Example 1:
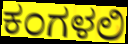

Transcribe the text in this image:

ಕಂಗಳಲಿ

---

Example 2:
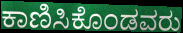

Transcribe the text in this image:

ಕಾಣಿಸಿಕೊಂಡವರು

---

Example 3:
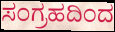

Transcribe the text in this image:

ಸಂಗ್ರಹದಿಂದ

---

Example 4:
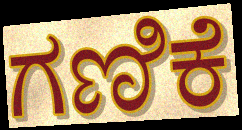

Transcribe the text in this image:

ಗಣಿಕೆ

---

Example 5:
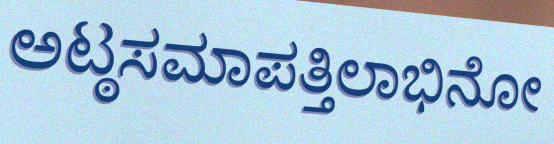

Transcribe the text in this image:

ಅಟ್ಠಸಮಾಪತ್ತಿಲಾಭಿನೋ